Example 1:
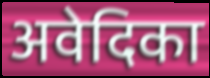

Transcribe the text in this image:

अवेदिका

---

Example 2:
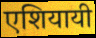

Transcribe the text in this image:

एशियायी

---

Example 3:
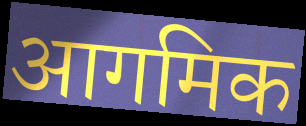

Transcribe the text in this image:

आगमिक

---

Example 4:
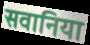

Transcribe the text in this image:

सवानिया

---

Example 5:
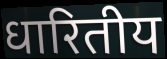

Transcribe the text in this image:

धारितीय